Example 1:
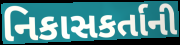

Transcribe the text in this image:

નિકાસકર્તાની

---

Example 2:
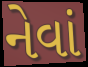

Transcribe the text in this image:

નેવાં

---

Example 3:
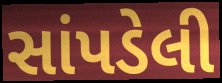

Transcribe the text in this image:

સાંપડેલી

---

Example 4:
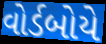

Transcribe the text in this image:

વોર્ડબોયે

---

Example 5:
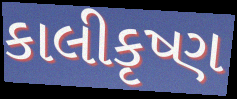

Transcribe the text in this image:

કાલીકૃષ્ણ